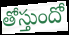
తోస్తుందో